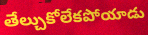
తేల్చుకోలేకపోయాడు